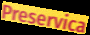
Preservica